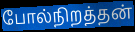
போல்நிறத்தன்